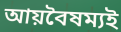
আয়বৈষম্যই